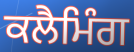
ਕਲੈਮਿੰਗ